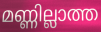
മണ്ണില്ലാത്ത